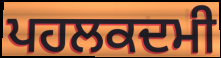
ਪਹਲਕਦਮੀ